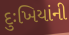
દુઃખિયાંની